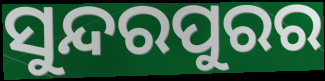
ସୁନ୍ଦରପୁରର